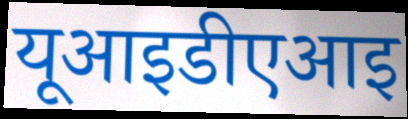
यूआइडीएआइ